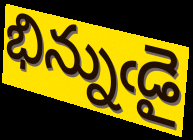
భిన్నుఁడై